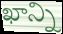
ఖాన్ని